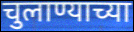
चुलाण्याच्या